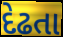
દેઢતા